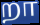
றா